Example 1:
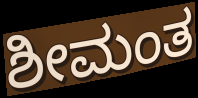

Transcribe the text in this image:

ಶೀಮಂತ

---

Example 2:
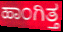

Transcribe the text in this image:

ಹಾಂಗಿತ್ತ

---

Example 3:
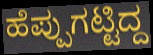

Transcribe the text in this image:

ಹೆಪ್ಪುಗಟ್ಟಿದ್ದ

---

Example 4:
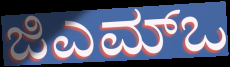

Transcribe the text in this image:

ಜಿಎಮ್ಒ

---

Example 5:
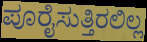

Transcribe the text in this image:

ಪೂರೈಸುತ್ತಿರಲಿಲ್ಲ